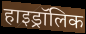
हाइड्रॉलिक